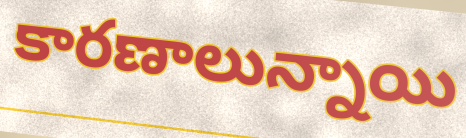
కారణాలున్నాయి